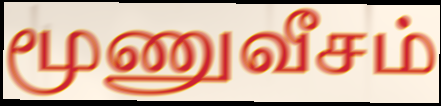
மூணுவீசம்